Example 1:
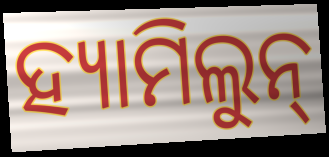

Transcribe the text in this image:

ହ୍ୟାମିଲୁନ୍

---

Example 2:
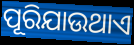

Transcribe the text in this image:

ପୂରିଯାଉଥାଏ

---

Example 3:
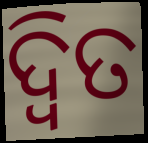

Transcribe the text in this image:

ଦ୍ୱିତ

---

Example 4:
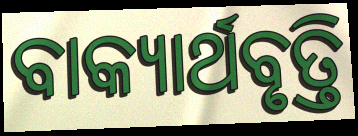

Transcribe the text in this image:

ବାକ୍ୟାର୍ଥବୃତ୍ତି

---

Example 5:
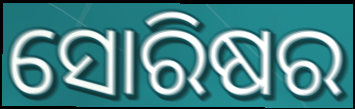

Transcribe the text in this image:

ସୋରିଷର